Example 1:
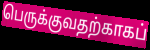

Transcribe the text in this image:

பெருக்குவதற்காகப்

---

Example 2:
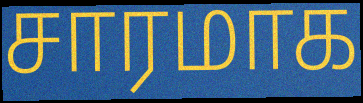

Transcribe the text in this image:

சாரமாக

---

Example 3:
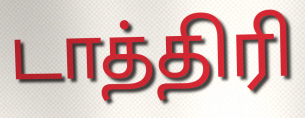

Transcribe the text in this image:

டாத்திரி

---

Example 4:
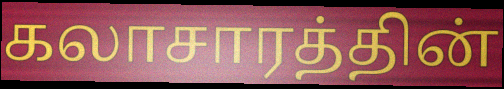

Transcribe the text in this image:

கலாசாரத்தின்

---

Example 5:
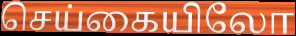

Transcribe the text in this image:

செய்கையிலோ